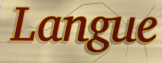
Langue